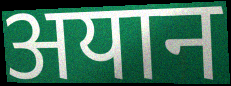
अयान